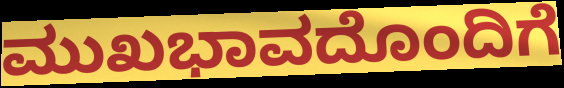
ಮುಖಭಾವದೊಂದಿಗೆ